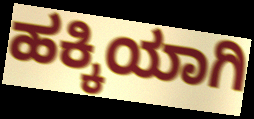
ಹಕ್ಕಿಯಾಗಿ